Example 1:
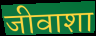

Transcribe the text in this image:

जीवाशा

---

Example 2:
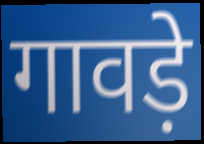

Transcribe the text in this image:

गावड़े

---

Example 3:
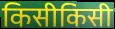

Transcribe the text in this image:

किसीकिसी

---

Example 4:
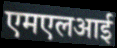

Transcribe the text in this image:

एमएलआई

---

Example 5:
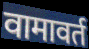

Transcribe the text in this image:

वामावर्त